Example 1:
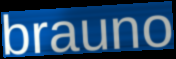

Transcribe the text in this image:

brauno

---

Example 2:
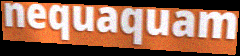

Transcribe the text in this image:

nequaquam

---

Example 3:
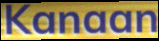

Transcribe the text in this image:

Kanaan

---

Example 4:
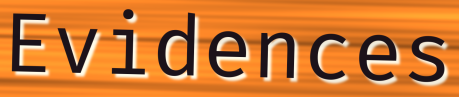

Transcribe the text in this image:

Evidences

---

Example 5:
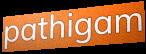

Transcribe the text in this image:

pathigam